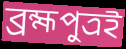
ব্রহ্মপুত্রই